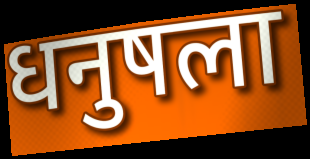
धनुषला